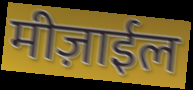
मीज़ाईल